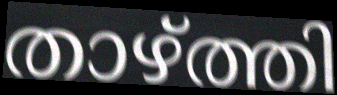
താഴ്ത്തി